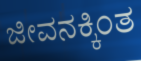
ಜೀವನಕ್ಕಿಂತ